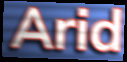
Arid